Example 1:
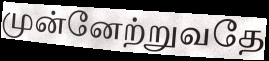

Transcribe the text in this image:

முன்னேற்றுவதே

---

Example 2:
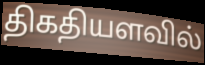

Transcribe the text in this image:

திகதியளவில்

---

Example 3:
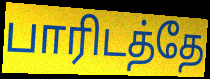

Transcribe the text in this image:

பாரிடத்தே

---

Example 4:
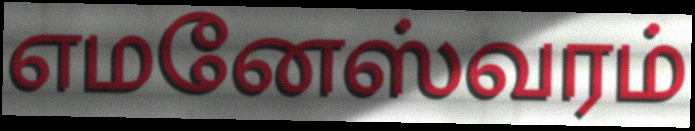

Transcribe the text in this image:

எமனேஸ்வரம்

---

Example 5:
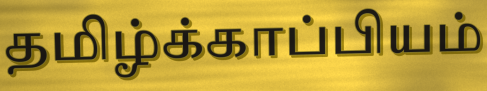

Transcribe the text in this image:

தமிழ்க்காப்பியம்